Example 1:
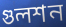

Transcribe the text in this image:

গুলশন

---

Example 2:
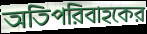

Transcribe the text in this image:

অতিপরিবাহকের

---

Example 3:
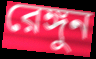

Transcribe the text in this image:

রেঙ্গুন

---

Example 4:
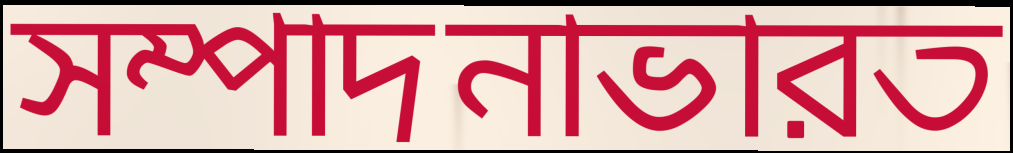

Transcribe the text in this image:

সম্পাদনাভারত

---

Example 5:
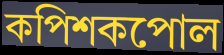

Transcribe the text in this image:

কপিশকপোল